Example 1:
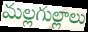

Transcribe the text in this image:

మల్లగుల్లాలు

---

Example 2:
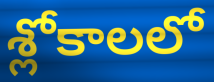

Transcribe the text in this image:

శ్లోకాలలో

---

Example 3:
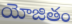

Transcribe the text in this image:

యోజితం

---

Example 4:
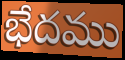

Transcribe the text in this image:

భేదము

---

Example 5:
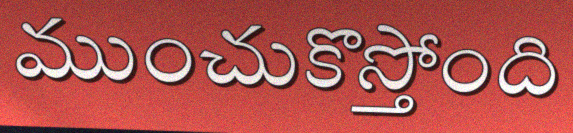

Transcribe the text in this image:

ముంచుకొస్తోంది